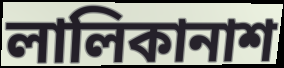
লালিকানাশ